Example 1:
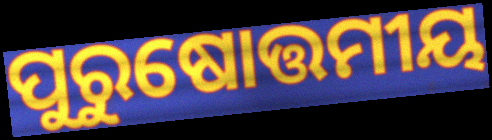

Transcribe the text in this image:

ପୁରୁଷୋତ୍ତମୀୟ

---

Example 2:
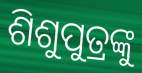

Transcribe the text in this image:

ଶିଶୁପୁତ୍ରଙ୍କୁ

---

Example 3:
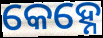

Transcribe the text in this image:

କେହ୍ନେ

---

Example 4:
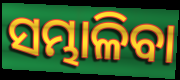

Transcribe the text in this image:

ସମ୍ଭାଳିବା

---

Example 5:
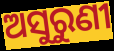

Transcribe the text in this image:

ଅସୁରୁଣୀ